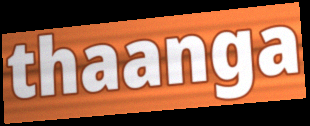
thaanga